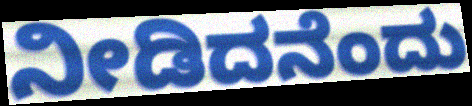
ನೀಡಿದನೆಂದು